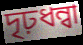
দৃঢ়ধন্বা